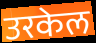
उरकेल